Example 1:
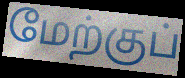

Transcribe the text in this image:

மேற்குப்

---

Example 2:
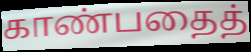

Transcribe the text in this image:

காண்பதைத்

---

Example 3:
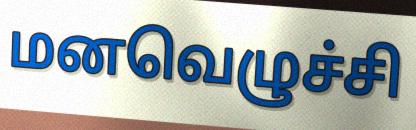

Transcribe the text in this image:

மனவெழுச்சி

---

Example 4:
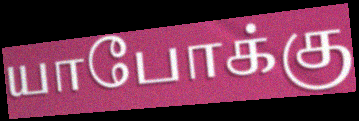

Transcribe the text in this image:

யாபோக்கு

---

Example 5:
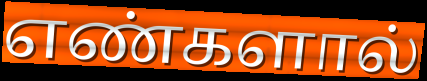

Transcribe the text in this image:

எண்களால்